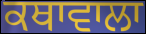
ਕਥਾਵਾਲਾ